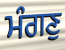
ਮੰਗਣੁ